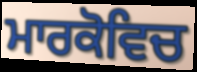
ਮਾਰਕੋਵਿਚ